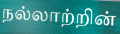
நல்லாற்றின்